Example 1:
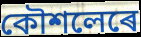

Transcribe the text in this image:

কৌশলেৰে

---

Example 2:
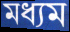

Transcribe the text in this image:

মধ্যম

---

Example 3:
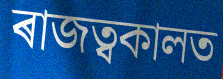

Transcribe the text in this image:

ৰাজত্বকালত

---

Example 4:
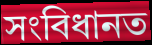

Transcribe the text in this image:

সংবিধানত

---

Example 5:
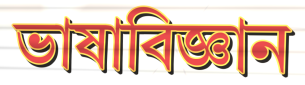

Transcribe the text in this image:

ভাষাবিজ্ঞান